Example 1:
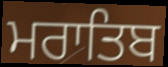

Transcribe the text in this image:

ਮਰਾਤਿਬ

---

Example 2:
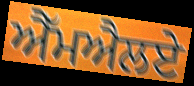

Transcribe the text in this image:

ਐੱਮਐਲਏ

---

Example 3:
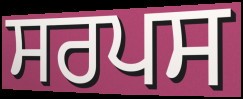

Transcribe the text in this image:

ਸਰਪਸ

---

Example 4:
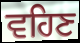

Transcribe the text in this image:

ਵਹਿਣ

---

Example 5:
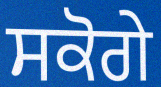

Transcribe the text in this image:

ਸਕੋਗੇ